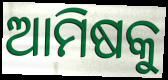
ଆମିଷକୁ